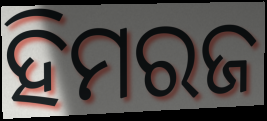
ହିମରଜ